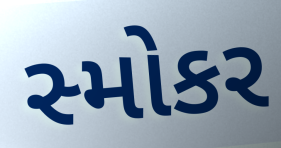
સ્મોકર